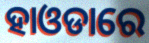
ହାଓଡାରେ